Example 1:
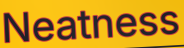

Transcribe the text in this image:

Neatness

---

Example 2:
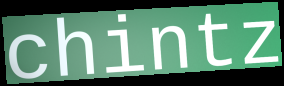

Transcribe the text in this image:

chintz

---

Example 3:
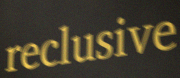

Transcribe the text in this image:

reclusive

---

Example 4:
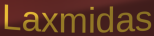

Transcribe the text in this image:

Laxmidas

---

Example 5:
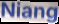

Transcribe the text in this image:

Niang